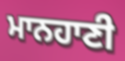
ਮਾਨਹਾਣੀ